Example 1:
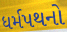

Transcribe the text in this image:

ધર્મપથનો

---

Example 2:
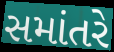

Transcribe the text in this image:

સમાંતરે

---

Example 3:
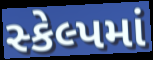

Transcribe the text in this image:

સ્કેલ્પમાં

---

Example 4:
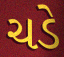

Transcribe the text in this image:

ચડે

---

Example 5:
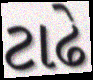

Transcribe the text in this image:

ટાઢે